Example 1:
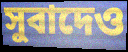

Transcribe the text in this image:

সুবাদেও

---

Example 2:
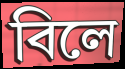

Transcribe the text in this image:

বিলে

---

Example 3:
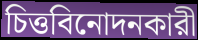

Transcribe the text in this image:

চিত্তবিনোদনকারী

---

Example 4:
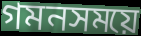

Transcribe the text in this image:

গমনসময়ে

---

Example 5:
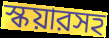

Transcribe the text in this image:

স্কয়ারসহ